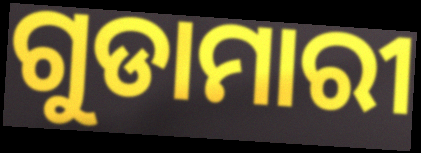
ଗୁଡାମାରୀ